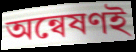
অন্বেষণই